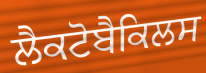
ਲੈਕਟੋਬੈਕਿਲਸ